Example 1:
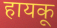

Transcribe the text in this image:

हायकू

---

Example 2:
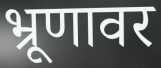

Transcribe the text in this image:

भ्रूणावर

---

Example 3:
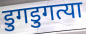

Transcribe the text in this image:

डुगडुगत्या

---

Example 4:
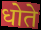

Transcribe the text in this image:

धोते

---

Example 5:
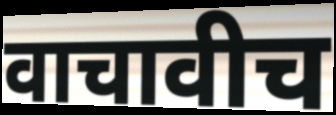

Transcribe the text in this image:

वाचावीच